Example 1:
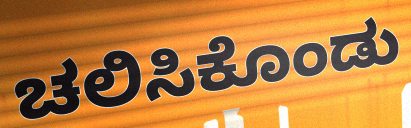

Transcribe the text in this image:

ಚಲಿಸಿಕೊಂಡು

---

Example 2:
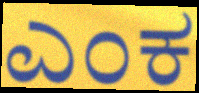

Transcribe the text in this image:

ಎಂಕ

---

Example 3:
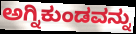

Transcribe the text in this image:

ಅಗ್ನಿಕುಂಡವನ್ನು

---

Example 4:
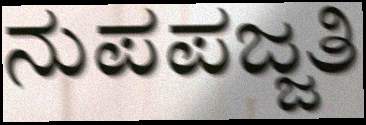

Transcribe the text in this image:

ನುಪಪಜ್ಜತಿ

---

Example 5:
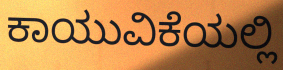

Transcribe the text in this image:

ಕಾಯುವಿಕೆಯಲ್ಲಿ